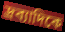
দ্রব্যাদিকে